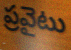
ప్రవైటు